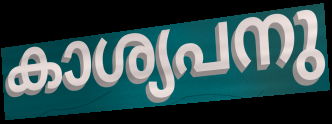
കാശ്യപനു